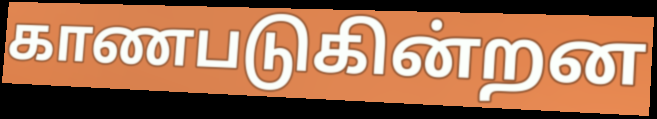
காணபடுகின்றன